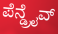
ಪೆನ್ಡ್ರೈವ್